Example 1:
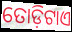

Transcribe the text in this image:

ତୋଡ଼ିଟାଏ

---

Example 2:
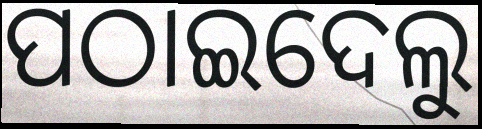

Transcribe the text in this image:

ପଠାଇଦେଲୁ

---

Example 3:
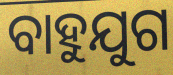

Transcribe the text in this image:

ବାହୁଯୁଗ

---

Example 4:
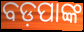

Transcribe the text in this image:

ବଡ଼ପାଙ୍କ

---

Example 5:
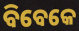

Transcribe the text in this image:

ବିବେକେ